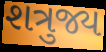
શત્રુજ્ય